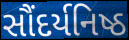
સૌંદર્યનિષ્ઠ